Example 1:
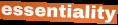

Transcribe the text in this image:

essentiality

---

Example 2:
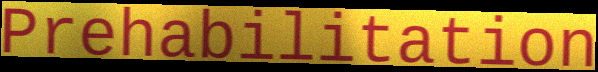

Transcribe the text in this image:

Prehabilitation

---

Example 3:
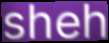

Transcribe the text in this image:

sheh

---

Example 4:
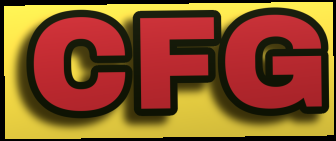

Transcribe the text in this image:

CFG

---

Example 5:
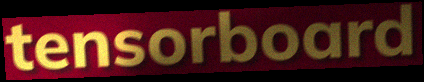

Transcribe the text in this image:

tensorboard